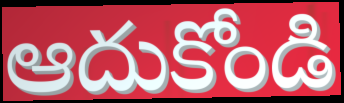
ఆదుకోండి